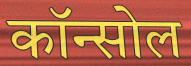
कॉन्सोल